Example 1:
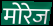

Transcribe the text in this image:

मोरेज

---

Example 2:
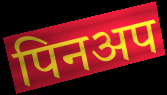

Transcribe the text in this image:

पिनअप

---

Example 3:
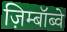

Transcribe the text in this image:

ज़िम्बॉब्वे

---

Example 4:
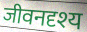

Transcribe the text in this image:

जीवनदृश्य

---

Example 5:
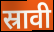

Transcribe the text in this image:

स्रावी